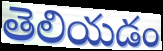
తెలియడం